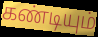
கண்டியும்